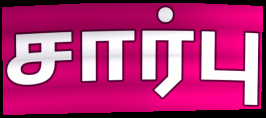
சார்பு